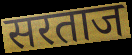
सरताज